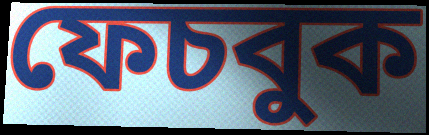
ফেচবুক